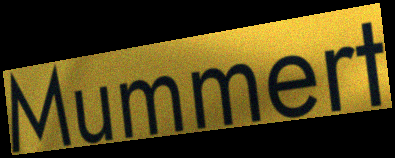
Mummert